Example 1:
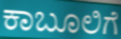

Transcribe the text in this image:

ಕಾಬೂಲಿಗೆ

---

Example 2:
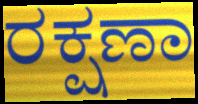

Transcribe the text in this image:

ರಕ್ಷಣಾ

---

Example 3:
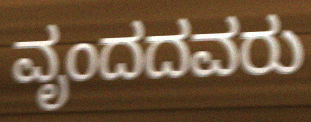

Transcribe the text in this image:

ವೃಂದದವರು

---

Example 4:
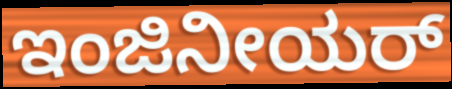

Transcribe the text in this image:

ಇಂಜಿನೀಯರ್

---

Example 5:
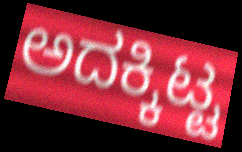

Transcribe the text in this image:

ಅದಕ್ಕಿಟ್ಟ